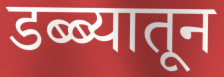
डब्ब्यातून